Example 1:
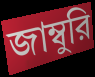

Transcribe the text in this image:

জাম্বুরি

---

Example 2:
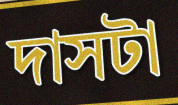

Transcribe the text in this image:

দাসটা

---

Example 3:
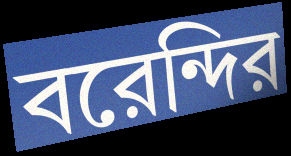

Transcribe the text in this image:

বরেন্দির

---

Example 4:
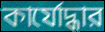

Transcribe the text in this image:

কার্যোদ্ধার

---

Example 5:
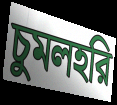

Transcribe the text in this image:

চুমলহরি